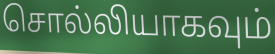
சொல்லியாகவும்